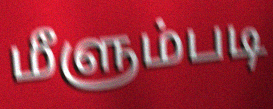
மீளும்படி